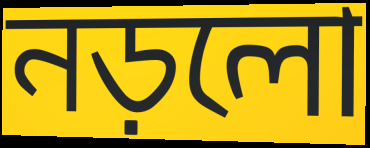
নড়লো